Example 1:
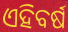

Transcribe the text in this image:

ଏହିବର୍ଷ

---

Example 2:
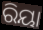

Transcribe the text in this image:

ରିୟା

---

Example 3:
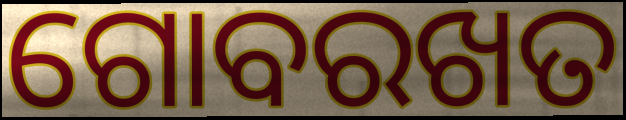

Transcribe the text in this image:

ଗୋବରଖତ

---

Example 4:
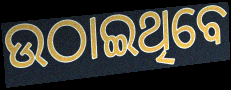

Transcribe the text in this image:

ଉଠାଇଥିବେ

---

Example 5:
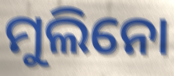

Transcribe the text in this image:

ମୁଲିନୋ